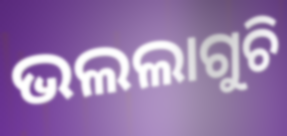
ଭଲଲାଗୁଚି